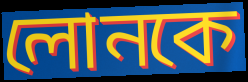
লোনকে